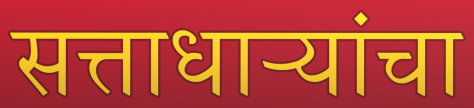
सत्ताधाऱ्यांचा